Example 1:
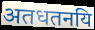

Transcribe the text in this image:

अतधतनयि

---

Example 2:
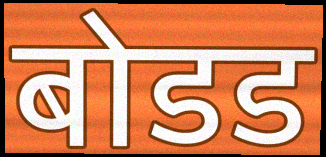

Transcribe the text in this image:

बोडड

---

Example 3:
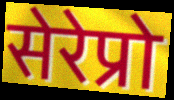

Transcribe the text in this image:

सेरेप्रो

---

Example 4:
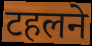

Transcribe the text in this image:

टहलने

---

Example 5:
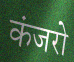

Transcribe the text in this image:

कंजरो